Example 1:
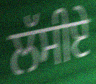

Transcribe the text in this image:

ਲੱਸੀਏ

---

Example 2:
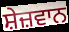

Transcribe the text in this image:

ਸ਼ੇਜ਼ਵਾਨ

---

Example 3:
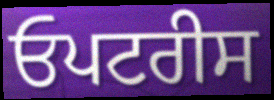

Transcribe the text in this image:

ਓਪਟਰੀਸ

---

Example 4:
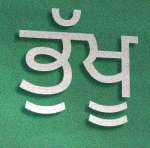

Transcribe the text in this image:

ਭੁੱਖੂ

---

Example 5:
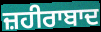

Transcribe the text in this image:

ਜ਼ਹੀਰਾਬਾਦ